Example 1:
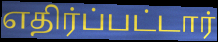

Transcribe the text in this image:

எதிர்ப்பட்டார்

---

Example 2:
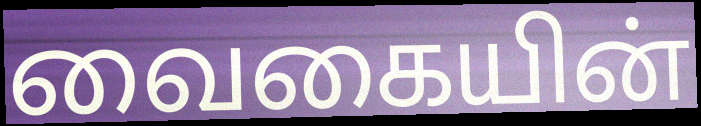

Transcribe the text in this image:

வைகையின்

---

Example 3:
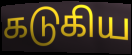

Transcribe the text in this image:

கடுகிய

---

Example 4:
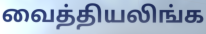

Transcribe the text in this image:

வைத்தியலிங்க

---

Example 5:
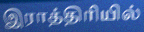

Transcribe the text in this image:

இராத்திரியில்